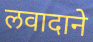
लवादाने